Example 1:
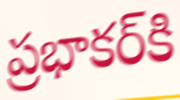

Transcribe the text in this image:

ప్రభాకర్‌కి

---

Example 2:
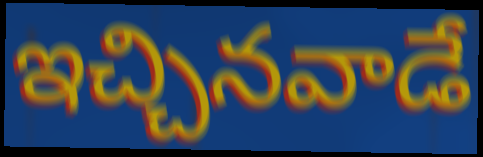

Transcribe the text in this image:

ఇచ్చినవాడే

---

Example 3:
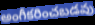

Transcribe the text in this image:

అంగీకరించబడవు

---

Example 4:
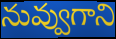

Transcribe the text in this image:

నువ్వుగాని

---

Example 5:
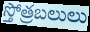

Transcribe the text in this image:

స్తోత్రబలులు